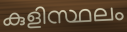
കുളിസ്ഥലം